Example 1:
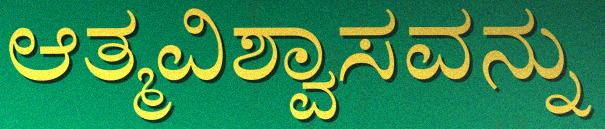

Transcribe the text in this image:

ಆತ್ಮವಿಶ್ವಾಸವನ್ನು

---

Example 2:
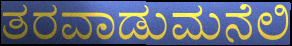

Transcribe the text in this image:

ತರವಾಡುಮನೆಲಿ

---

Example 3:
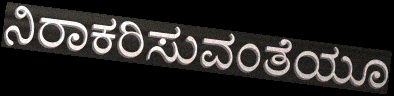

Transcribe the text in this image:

ನಿರಾಕರಿಸುವಂತೆಯೂ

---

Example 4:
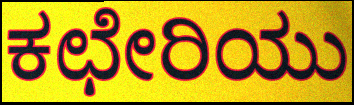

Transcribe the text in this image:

ಕಛೇರಿಯು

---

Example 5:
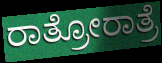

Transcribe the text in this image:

ರಾತ್ರೋರಾತ್ರೆ